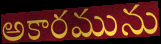
అకారమును